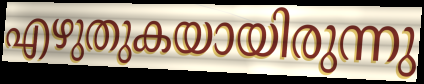
എഴുതുകയായിരുന്നു